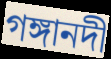
গঙ্গানদী